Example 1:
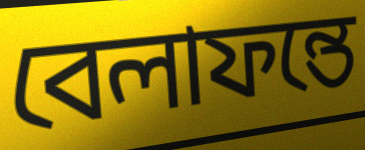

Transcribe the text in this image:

বেলাফন্তে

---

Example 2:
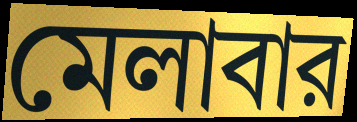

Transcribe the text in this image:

মেলাবার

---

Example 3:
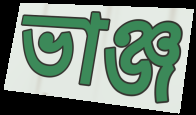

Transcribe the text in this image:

ভাঞ্জ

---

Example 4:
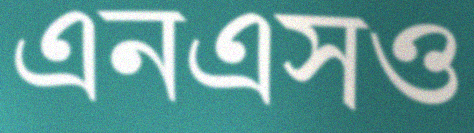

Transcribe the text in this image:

এনএসও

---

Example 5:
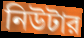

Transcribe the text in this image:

নিউটার